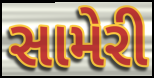
સામેરી